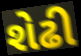
શેઢી